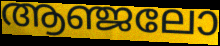
ആഞ്ജലോ